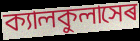
ক্যালকুলাসেৰ